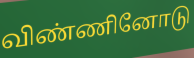
விண்ணினோடு